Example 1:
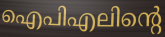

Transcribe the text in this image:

ഐപിഎലിന്റെ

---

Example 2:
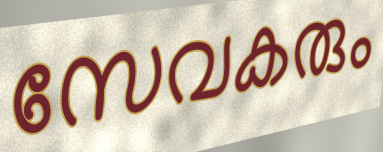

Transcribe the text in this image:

സേവകരും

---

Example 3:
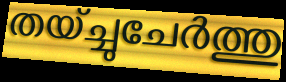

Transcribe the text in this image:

തയ്ച്ചുചേർത്തു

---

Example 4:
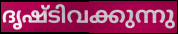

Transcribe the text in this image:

ദൃഷ്ടിവക്കുന്നു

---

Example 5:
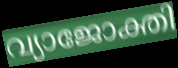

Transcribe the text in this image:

വ്യാജോക്തി